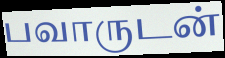
பவாருடன்